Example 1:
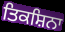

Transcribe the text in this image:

ਤਿਕਸ਼ਿਨਾ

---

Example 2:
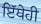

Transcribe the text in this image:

ਇੱਥੇਹੀ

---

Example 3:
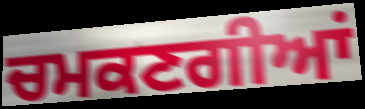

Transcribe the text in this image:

ਚਮਕਣਗੀਆਂ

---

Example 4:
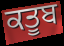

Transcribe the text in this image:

ਕਤੂਬ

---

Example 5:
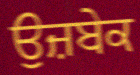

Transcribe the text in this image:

ਉਜ਼ਬੇਕ